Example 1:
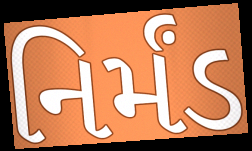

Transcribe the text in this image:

નિર્મંડ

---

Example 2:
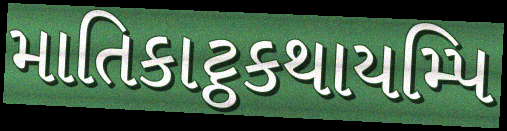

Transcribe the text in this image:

માતિકાટ્ઠકથાયમ્પિ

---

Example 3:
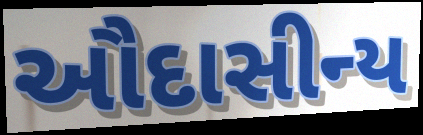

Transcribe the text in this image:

ઔદાસીન્ય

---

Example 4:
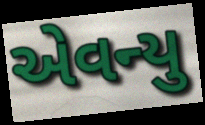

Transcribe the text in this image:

એવન્યુ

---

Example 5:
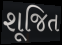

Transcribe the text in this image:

શૂજિત